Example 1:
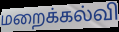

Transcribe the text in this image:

மறைக்கல்வி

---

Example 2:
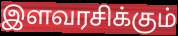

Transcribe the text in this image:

இளவரசிக்கும்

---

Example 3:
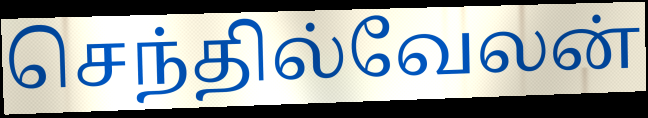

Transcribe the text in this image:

செந்தில்வேலன்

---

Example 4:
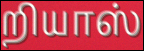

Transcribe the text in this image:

றியாஸ்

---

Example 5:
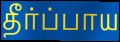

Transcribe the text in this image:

தீர்ப்பாய